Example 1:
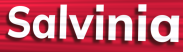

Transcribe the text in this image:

Salvinia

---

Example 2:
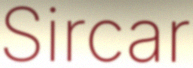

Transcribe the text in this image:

Sircar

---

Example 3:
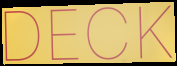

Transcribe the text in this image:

DECK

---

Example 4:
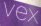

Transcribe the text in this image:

vex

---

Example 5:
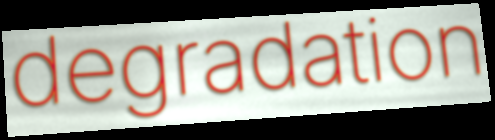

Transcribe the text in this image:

degradation